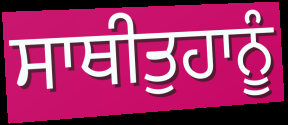
ਸਾਥੀਤੁਹਾਨੂੰ